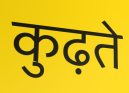
कुढ़ते